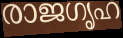
രാജഗൃഹ